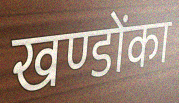
खण्डोंका